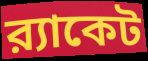
র‍্যাকেট